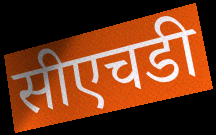
सीएचडी